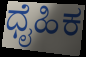
ಧೈಹಿಕ